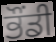
ਭੌਂਡੀ